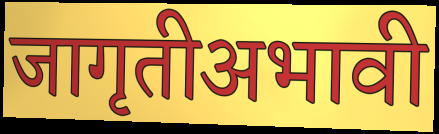
जागृतीअभावी